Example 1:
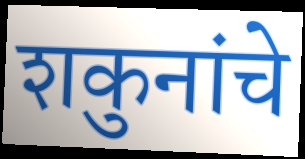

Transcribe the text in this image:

शकुनांचे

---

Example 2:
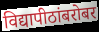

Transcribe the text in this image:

विद्यापीठांबरोबर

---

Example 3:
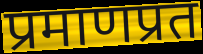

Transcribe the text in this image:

प्रमाणप्रत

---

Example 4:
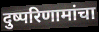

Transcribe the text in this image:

दुष्परिणामांचा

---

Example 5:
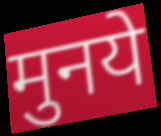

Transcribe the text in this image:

मुनये